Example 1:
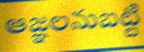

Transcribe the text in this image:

ఆజ్ఞలనుబట్టి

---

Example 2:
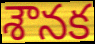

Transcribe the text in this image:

శౌనక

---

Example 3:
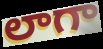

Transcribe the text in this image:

లాగా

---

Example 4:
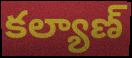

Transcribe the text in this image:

కల్యాణ్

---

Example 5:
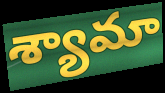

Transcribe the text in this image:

శ్యామా